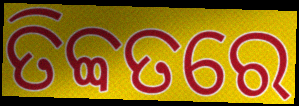
ତିବ୍ବତରେ